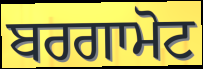
ਬਰਗਾਮੋਟ